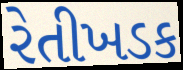
રેતીખડક